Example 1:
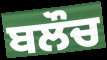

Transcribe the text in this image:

ਬਲੌਚ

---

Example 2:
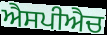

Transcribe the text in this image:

ਐਸਪੀਐਚ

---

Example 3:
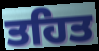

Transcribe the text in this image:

ਤਹਿਤ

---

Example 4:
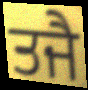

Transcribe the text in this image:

ਤਜੈ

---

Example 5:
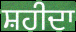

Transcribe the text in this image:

ਸ਼ਹੀਦਾ